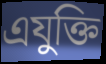
এযুক্তি